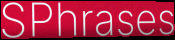
SPhrases